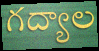
గద్యాల